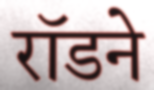
रॉडने